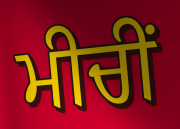
ਮੀਚੀਂ